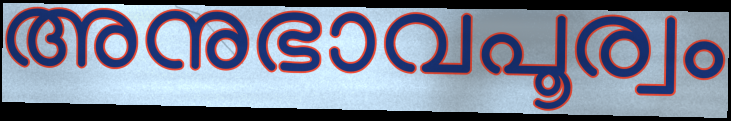
അനുഭാവപൂര്വം